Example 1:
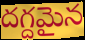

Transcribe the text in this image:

దగ్దమైన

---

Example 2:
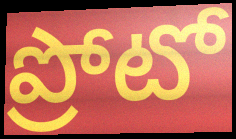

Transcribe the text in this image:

ప్రోటో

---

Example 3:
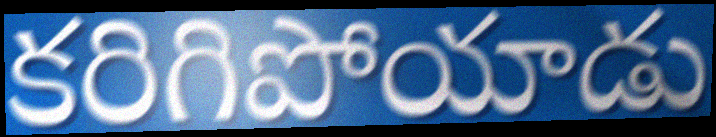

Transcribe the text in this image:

కరిగిపోయాడు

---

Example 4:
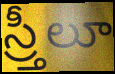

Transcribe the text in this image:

స్ర్తీలూ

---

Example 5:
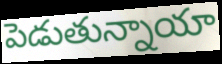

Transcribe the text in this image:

పెడుతున్నాయా